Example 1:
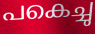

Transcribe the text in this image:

പകെച്ചു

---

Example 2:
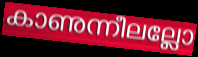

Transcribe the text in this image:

കാണുന്നീലല്ലോ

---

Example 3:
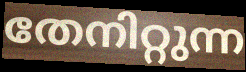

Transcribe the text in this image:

തേനിറ്റുന്ന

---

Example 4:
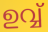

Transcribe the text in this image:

ഉവ്വ്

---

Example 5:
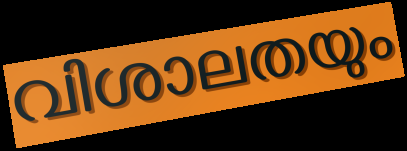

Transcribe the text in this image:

വിശാലതയും